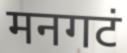
मनगटं